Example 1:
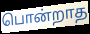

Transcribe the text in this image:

பொன்றாத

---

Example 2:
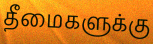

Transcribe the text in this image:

தீமைகளுக்கு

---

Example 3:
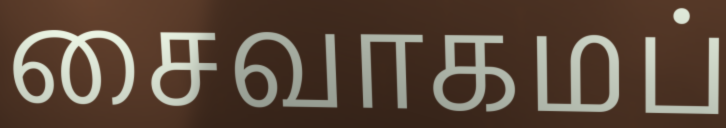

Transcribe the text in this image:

சைவாகமப்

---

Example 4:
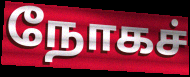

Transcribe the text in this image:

நோகச்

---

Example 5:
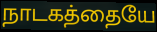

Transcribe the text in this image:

நாடகத்தையே